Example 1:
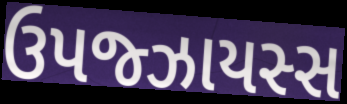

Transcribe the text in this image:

ઉપજ્ઝાયસ્સ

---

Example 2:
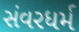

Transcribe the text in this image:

સંવરધર્મ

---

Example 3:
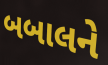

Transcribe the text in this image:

બબાલને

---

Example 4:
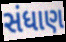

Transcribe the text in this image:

સંધાણ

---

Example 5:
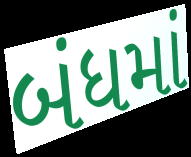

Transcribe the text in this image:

બંધમાં